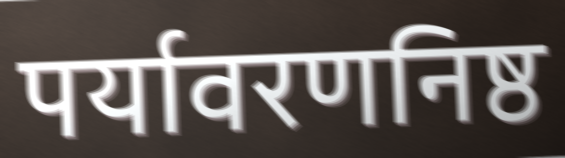
पर्यावरणनिष्ठ